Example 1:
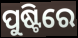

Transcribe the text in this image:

ପୁଷ୍ଟିରେ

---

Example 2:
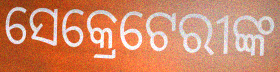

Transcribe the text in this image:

ସେକ୍ରେଟେରୀଙ୍କ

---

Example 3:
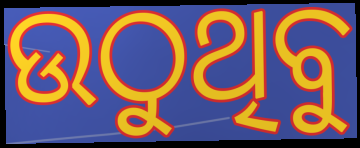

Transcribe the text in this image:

ଉଠୁଥିବୁ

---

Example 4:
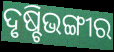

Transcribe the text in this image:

ଦୃଷ୍ଚିଭଙ୍ଗୀର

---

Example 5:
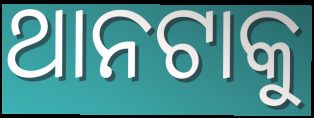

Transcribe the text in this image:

ଥାନଟାକୁ